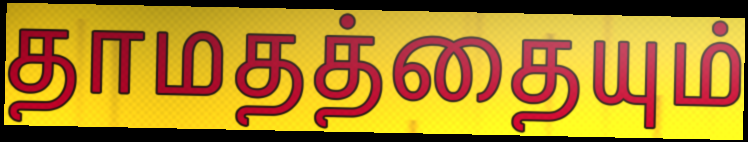
தாமதத்தையும்